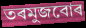
তৰমুজবোৰ